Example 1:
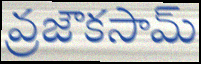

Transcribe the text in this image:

వ్రజౌకసామ్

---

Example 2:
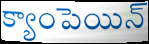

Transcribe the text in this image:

క్యాంపెయిన్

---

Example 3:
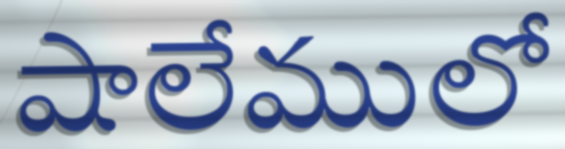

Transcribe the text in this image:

షాలేములో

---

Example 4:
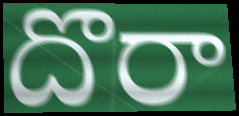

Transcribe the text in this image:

దొరా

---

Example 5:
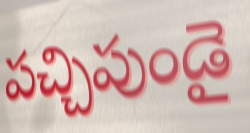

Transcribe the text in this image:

పచ్చిపుండై